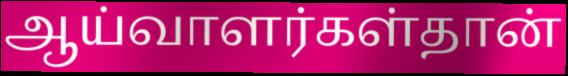
ஆய்வாளர்கள்தான்